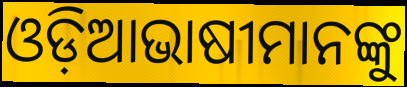
ଓଡ଼ିଆଭାଷୀମାନଙ୍କୁ